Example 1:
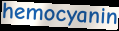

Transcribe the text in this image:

hemocyanin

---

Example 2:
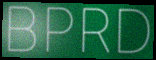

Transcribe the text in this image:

BPRD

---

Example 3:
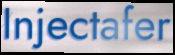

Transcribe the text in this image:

Injectafer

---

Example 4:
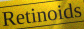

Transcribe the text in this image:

Retinoids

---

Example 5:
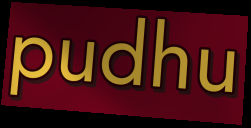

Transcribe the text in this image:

pudhu